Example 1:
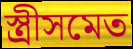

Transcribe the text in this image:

স্ত্রীসমেত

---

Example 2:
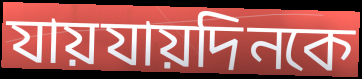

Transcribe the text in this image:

যায়যায়দিনকে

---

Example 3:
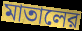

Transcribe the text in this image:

মাতালের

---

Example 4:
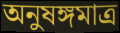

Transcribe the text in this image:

অনুষঙ্গমাত্র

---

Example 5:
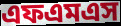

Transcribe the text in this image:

এফএমএস